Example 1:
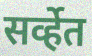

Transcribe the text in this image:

सर्व्हेत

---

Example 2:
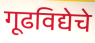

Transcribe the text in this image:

गूढविद्येचे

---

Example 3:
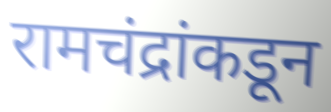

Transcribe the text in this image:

रामचंद्रांकडून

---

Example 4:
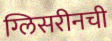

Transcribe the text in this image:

ग्लिसरीनची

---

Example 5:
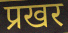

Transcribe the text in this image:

प्रखर